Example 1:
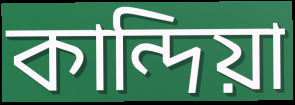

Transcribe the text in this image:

কান্দিয়া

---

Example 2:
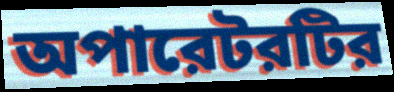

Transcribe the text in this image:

অপারেটরটির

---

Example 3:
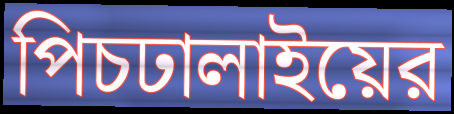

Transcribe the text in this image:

পিচঢালাইয়ের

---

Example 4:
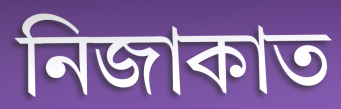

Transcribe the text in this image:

নিজাকাত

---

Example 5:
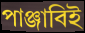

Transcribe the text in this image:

পাঞ্জাবিই